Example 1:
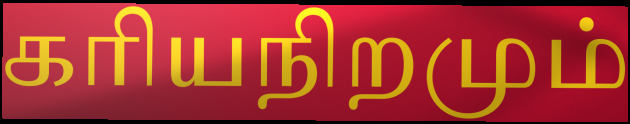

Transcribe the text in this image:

கரியநிறமும்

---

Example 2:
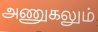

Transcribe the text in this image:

அணுகலும்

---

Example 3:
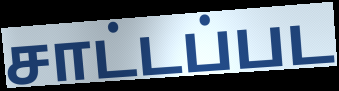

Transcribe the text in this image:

சாட்டப்பட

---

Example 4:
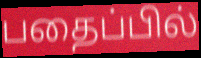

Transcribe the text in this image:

பதைப்பில்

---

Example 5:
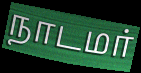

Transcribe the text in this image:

நாடமர்